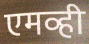
एमव्ही